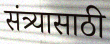
संत्र्यासाठी